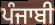
ਪੰਜਾਬੀ